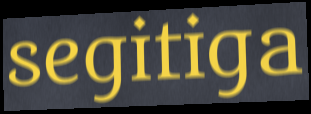
segitiga